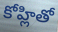
కోహ్లితో